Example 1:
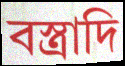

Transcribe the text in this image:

বস্ত্রাদি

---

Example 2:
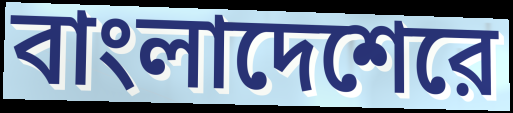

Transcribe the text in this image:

বাংলাদেশেরে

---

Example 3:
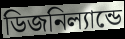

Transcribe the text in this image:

ডিজনিল্যান্ডে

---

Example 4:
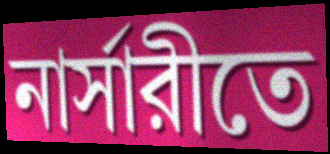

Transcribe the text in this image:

নার্সারীতে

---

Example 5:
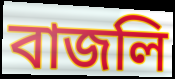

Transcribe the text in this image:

বাজলি